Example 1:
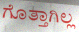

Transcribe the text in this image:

ಗೊತ್ತಾಗಿಲ್ಲ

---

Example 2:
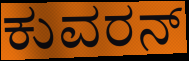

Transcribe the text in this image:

ಕುವರನ್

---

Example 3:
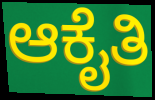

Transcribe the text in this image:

ಆಕೈತಿ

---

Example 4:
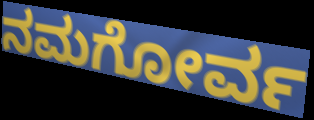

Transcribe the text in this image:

ನಮಗೋರ್ವ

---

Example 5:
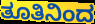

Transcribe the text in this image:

ತೂತಿನಿಂದ